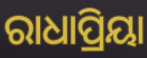
ରାଧାପ୍ରିୟା